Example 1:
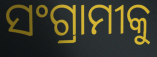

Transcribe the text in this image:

ସଂଗ୍ରାମୀକୁ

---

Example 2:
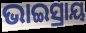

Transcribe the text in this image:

ଭାଇସ୍ରାୟ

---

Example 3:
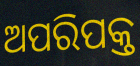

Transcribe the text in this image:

ଅପରିପକ୍ତ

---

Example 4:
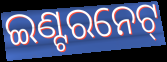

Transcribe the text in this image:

ଇଣ୍ଟରନେଟ୍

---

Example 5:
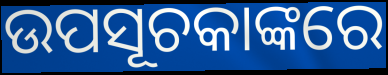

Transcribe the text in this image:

ଉପସୂଚକାଙ୍କରେ